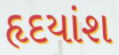
હૃદયાંશ